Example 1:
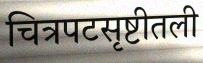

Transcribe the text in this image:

चित्रपटसृष्टीतली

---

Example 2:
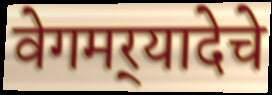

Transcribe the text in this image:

वेगमर्यादेचे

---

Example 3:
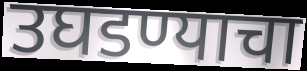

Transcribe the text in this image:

उघडण्याचा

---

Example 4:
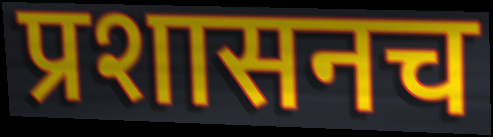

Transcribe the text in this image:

प्रशासनच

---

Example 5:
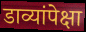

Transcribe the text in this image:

डाव्यांपेक्षा